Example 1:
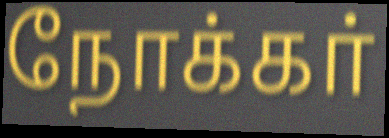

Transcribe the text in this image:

நோக்கர்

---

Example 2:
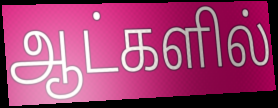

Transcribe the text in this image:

ஆட்களில்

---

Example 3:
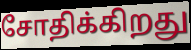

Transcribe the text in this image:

சோதிக்கிறது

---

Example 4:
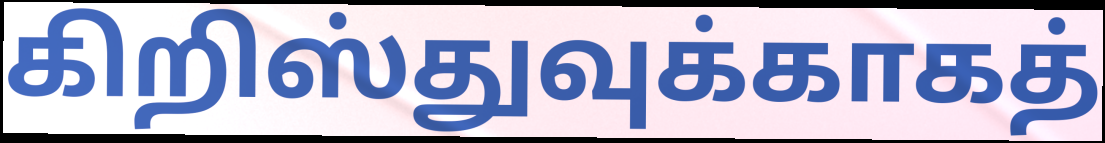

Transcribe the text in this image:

கிறிஸ்துவுக்காகத்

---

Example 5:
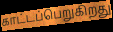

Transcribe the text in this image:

காட்டப்பெறுகிறது